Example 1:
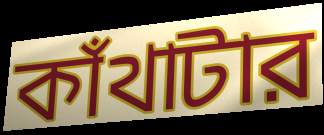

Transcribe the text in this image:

কাঁথাটার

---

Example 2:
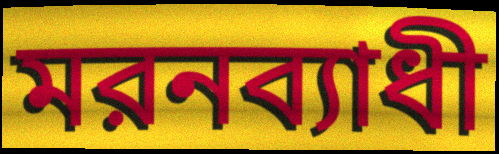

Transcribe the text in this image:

মরনব্যাধী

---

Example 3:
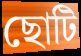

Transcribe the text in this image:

ছোটি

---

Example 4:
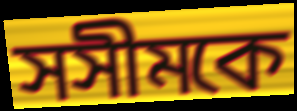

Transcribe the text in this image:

সসীমকে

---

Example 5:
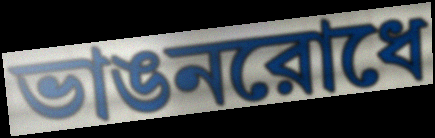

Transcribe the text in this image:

ভাঙনরোধে